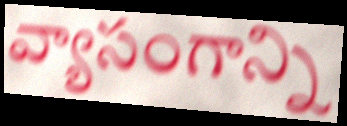
వ్యాసంగాన్ని